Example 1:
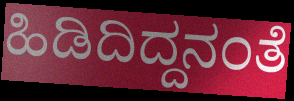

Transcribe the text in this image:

ಹಿಡಿದಿದ್ದನಂತೆ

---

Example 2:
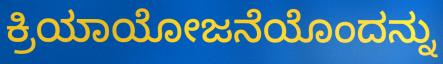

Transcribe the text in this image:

ಕ್ರಿಯಾಯೋಜನೆಯೊಂದನ್ನು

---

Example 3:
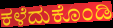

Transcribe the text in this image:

ಕಳೆದುಕೊಂಡಿ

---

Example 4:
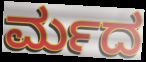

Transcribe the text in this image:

ರ್ಮದ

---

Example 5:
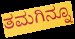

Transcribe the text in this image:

ತಮಗಿನ್ನೂ